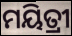
ମୟିତ୍ରୀ